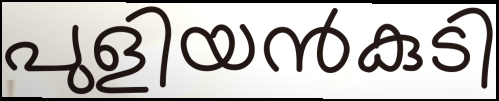
പുളിയൻകുടി